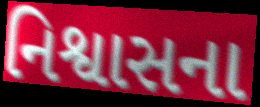
નિશ્વાસના